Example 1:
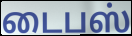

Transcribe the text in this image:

டைபஸ்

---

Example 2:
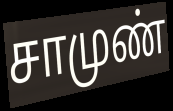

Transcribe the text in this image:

சாமுண்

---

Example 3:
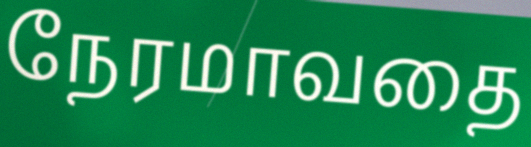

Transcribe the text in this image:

நேரமாவதை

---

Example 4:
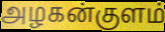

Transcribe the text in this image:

அழகன்குளம்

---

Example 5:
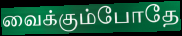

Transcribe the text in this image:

வைக்கும்போதே